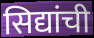
सिद्यांची